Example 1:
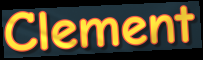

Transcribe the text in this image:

Clement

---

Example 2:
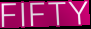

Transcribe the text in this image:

FIFTY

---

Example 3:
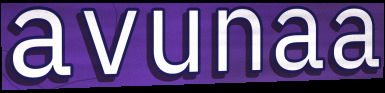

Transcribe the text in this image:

avunaa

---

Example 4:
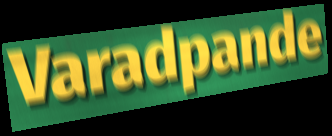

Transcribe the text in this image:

Varadpande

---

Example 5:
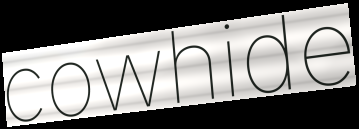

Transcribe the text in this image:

cowhide